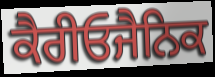
ਕੈਰੀਓਜੈਨਿਕ